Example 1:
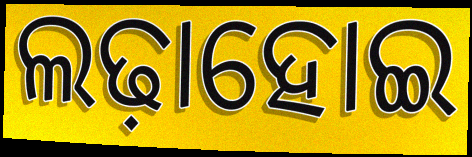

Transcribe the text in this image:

ଲଢ଼ାହୋଇ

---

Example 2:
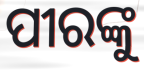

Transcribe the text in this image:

ପୀରଙ୍କୁ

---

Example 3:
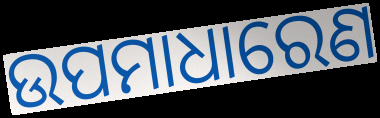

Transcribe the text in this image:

ଉପମାଧାରେଣ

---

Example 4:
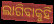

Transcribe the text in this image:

ଲାଗିବାକୁହିଁ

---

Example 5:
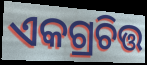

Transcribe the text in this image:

ଏକଗ୍ରଚିତ୍ତ